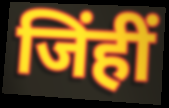
जिंहीं